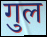
गुल